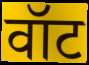
वॉट